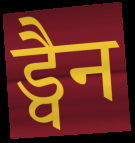
ड्वैन